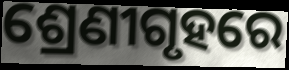
ଶ୍ରେଣୀଗୃହରେ